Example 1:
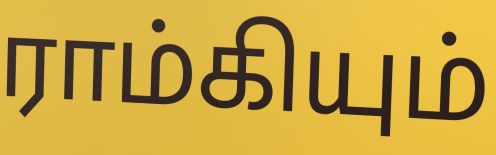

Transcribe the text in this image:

ராம்கியும்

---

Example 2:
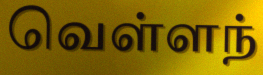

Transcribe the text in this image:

வெள்ளந்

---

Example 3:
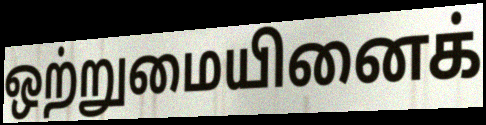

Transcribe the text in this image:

ஒற்றுமையினைக்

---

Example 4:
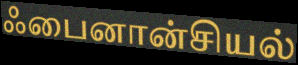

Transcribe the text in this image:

ஃபைனான்சியல்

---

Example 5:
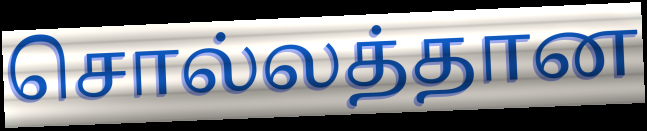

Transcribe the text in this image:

சொல்லத்தான